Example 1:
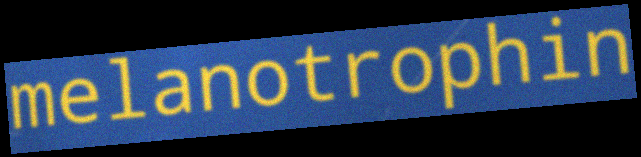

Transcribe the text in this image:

melanotrophin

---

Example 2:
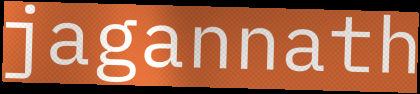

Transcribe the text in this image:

jagannath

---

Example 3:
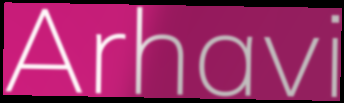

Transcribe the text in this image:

Arhavi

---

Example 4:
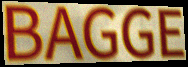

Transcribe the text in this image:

BAGGE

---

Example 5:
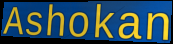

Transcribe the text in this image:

Ashokan